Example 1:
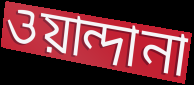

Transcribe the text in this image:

ওয়ান্দানা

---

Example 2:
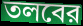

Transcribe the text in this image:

তলবের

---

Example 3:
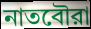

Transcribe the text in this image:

নাতবৌরা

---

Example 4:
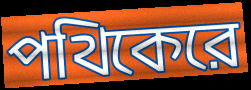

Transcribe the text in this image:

পথিকেরে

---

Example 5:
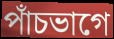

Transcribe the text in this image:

পাঁচভাগে